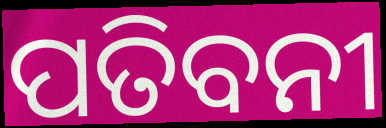
ପତିବନୀ